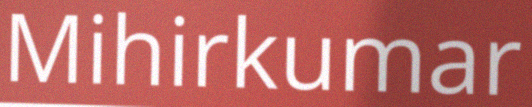
Mihirkumar